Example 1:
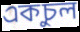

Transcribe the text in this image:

একচুল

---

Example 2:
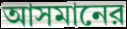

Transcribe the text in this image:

আসমানের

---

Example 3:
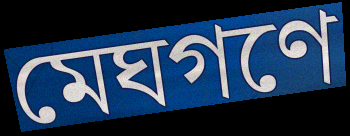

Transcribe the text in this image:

মেঘগণে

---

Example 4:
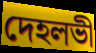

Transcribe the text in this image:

দেহলভী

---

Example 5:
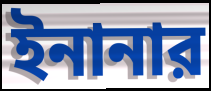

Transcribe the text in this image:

ইনানার